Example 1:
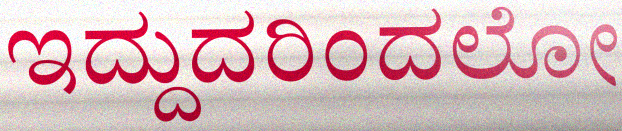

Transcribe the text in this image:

ಇದ್ದುದರಿಂದಲೋ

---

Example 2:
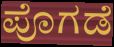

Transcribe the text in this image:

ಪೊಗಡೆ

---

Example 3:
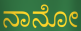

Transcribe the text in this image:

ನಾನೋ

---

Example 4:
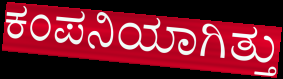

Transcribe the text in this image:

ಕಂಪನಿಯಾಗಿತ್ತು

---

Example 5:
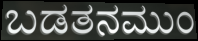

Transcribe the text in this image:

ಬಡತನಮುಂ